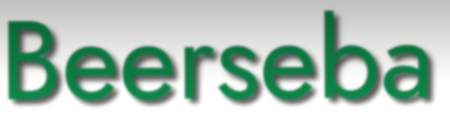
Beerseba